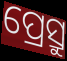
ପ୍ରେସ୍ରୁ